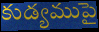
కుడ్యముపై